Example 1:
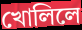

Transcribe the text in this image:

খোলিলে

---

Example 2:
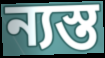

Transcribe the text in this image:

ন্যস্ত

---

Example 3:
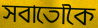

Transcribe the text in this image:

সবাতোকৈ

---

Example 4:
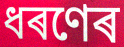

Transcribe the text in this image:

ধৰণেৰ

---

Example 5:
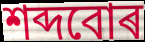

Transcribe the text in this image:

শব্দবোৰ